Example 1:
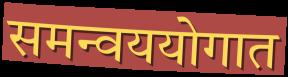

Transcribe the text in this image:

समन्वययोगात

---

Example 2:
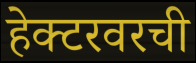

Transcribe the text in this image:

हेक्टरवरची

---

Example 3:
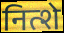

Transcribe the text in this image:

नित्शे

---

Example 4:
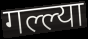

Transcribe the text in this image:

गल्ल्या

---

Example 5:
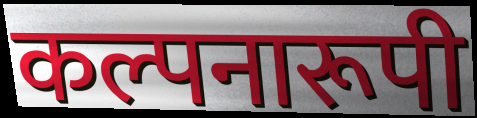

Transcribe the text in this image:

कल्पनारूपी